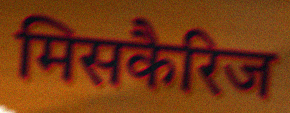
मिसकैरिज